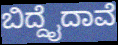
ಬಿದ್ದೈದಾವೆ